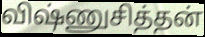
விஷ்ணுசித்தன்